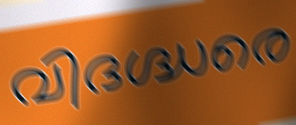
വിദഗ്ദ്ധരെ